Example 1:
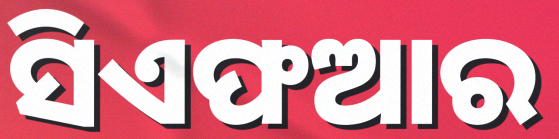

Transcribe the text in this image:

ସିଏଫଆର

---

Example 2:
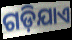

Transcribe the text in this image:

ଗଡ଼ିଯାଏ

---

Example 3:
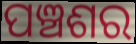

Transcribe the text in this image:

ପଞ୍ଚଶର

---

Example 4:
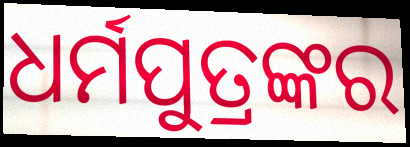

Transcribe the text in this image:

ଧର୍ମପୁତ୍ରଙ୍କର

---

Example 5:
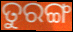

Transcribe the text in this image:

ତୁରଙ୍ଗ